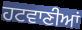
ਹਟਵਾਣੀਆਂ